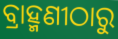
ବ୍ରାହ୍ମଣୀଠାରୁ